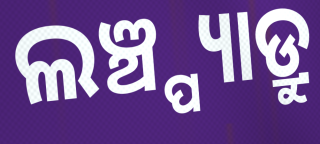
ଲଞ୍ଚ୍ପ୍ୟାଡ୍ରୁ